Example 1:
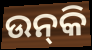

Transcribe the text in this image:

ଉନ୍‌କି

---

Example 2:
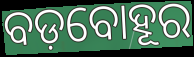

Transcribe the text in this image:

ବଡ଼ବୋହୂର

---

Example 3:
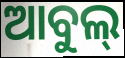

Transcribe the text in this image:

ଆବୁଲ୍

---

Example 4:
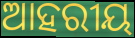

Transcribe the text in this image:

ଆହରୀୟ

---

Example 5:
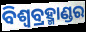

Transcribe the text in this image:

ବିଶ୍ୱବ୍ରହ୍ମାଣ୍ଡର